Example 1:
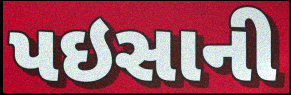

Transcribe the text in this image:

પઇસાની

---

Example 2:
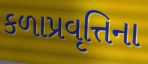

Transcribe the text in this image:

કળાપ્રવૃત્તિના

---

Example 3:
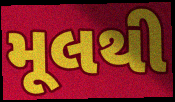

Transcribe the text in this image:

મૂલથી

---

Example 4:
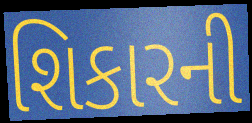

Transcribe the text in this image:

શિકારની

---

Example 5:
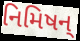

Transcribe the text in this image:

નિમિષન્